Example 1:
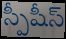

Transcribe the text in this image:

స్పీషీస్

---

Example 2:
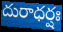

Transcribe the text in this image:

దురాధర్షః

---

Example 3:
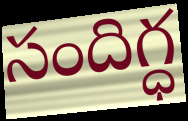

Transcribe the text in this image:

సందిగ్ధ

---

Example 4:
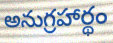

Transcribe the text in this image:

అనుగ్రహార్థం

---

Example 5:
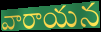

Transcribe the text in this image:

వారాయన